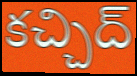
కచ్చిద్